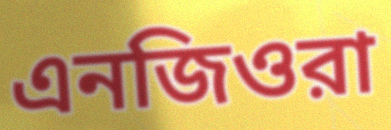
এনজিওরা